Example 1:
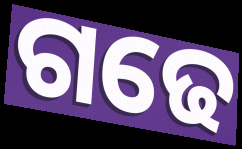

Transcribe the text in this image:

ଗଢେ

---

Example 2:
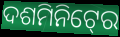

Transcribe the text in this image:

ଦଶମିନିଟ୍‍ରେ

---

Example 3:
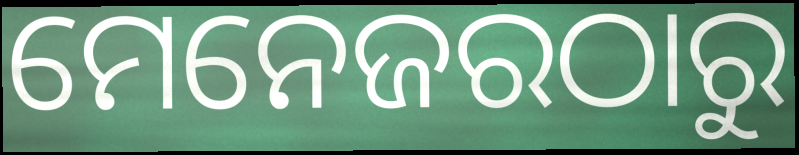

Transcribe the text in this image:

ମେନେଜରଠାରୁ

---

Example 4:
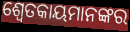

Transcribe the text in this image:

ଶ୍ବେତକାୟମାନଙ୍କର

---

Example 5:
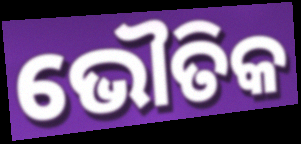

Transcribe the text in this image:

ଭୌତିକ